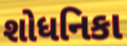
શોધનિકા